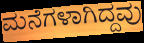
ಮನೆಗಳಾಗಿದ್ದವು